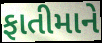
ફાતીમાને